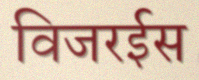
विजरईस